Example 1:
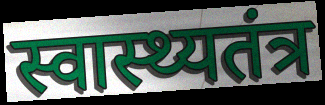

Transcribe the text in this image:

स्वास्थ्यतंत्र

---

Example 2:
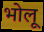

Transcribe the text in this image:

भोलू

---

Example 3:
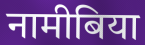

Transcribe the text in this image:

नामीबिया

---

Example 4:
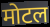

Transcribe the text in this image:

मोटल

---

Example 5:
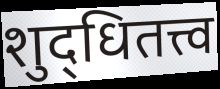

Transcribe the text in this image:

शुद्धितत्त्व